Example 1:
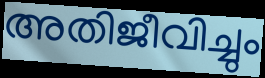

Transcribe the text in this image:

അതിജീവിച്ചും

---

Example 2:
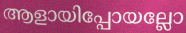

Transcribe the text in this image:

ആളായിപ്പോയല്ലോ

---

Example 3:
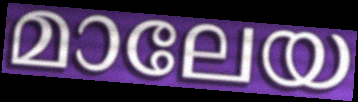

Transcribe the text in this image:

മാലേയ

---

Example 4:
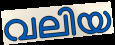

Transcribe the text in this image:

വലിയ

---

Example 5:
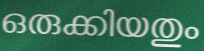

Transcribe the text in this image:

ഒരുക്കിയതും